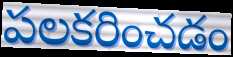
పలకరించడం